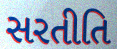
સરતીતિ